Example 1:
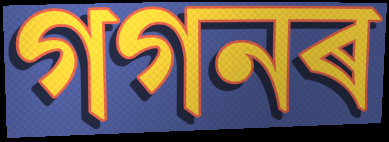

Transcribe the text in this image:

গগনৰ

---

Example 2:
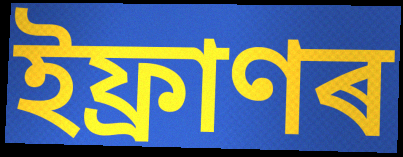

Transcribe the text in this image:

ইফ্ৰাণৰ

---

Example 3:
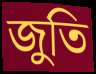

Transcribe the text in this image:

জুতি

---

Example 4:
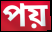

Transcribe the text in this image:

পয়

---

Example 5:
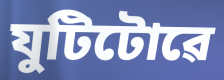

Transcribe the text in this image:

যুটিটোৱে